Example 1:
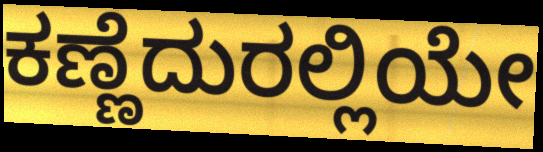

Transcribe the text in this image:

ಕಣ್ಣೆದುರಲ್ಲಿಯೇ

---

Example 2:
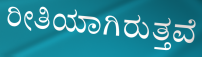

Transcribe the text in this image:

ರೀತಿಯಾಗಿರುತ್ತವೆ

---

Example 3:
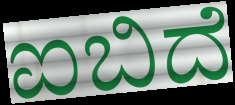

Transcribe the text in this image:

ಐಬಿದೆ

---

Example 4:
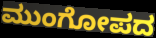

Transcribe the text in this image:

ಮುಂಗೋಪದ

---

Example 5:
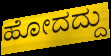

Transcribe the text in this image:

ಹೋದದ್ದು